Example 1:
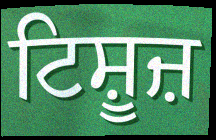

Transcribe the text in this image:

ਟਿਸ਼ੂਜ਼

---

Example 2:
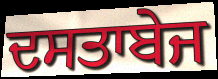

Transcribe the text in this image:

ਦਸਤਾਬੇਜ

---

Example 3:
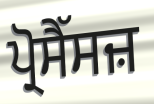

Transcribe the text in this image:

ਪ੍ਰੋਸੈੱਸਜ਼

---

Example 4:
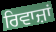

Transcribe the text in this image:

ਰਿਵਾਜ਼ਾਂ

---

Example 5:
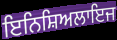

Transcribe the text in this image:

ਇਨਿਸ਼ਿਅਲਾਇਜ